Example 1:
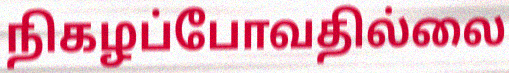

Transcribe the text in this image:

நிகழப்போவதில்லை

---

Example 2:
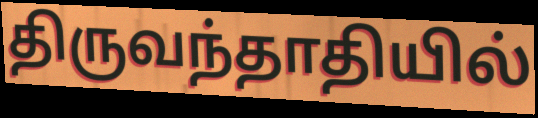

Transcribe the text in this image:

திருவந்தாதியில்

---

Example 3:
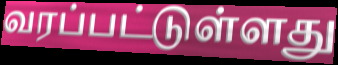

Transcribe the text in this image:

வரப்பட்டுள்ளது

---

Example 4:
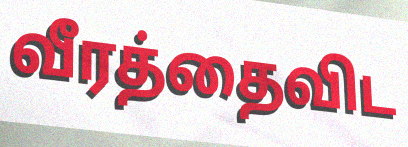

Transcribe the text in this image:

வீரத்தைவிட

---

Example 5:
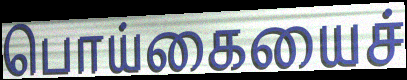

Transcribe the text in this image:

பொய்கையைச்